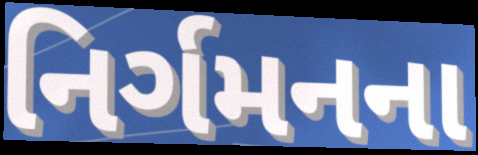
નિર્ગમનના